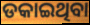
ଡକାଇଥିବା